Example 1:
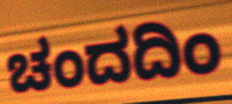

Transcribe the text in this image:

ಚಂದದಿಂ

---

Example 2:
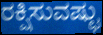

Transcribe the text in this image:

ರಕ್ಷಿಸುವಷ್ಟು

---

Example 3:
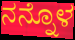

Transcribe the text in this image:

ನನ್ನೊಳ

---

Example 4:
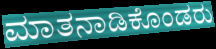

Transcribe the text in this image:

ಮಾತನಾಡಿಕೊಂಡರು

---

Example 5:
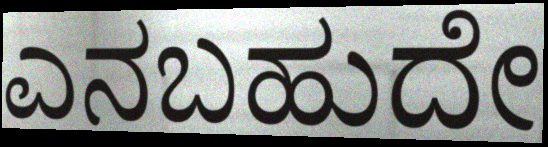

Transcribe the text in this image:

ಎನಬಹುದೇ